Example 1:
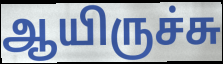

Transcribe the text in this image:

ஆயிருச்சு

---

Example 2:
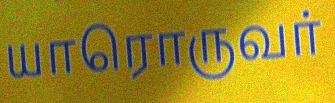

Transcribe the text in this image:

யாரொருவர்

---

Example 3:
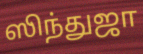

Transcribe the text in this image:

ஸிந்துஜா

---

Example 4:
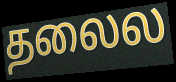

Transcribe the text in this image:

தலைல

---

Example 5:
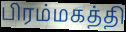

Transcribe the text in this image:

பிரம்மகத்தி